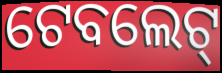
ଟେବଲେଟ୍